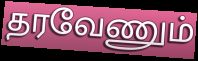
தரவேணும்